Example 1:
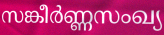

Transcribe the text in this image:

സങ്കീർണ്ണസംഖ്യ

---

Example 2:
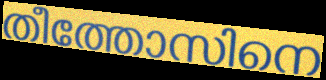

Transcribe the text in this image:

തീത്തോസിനെ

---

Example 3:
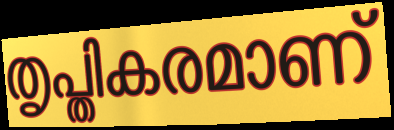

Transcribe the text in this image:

തൃപ്തികരമാണ്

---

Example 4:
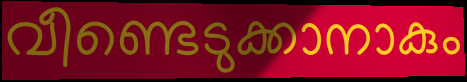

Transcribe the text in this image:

വീണ്ടെടുക്കാനാകും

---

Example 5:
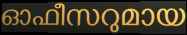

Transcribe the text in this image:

ഓഫീസറുമായ